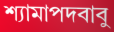
শ্যামাপদবাবু